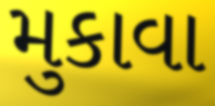
મુકાવા